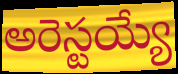
అరెస్టయ్యే